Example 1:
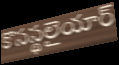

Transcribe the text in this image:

కొసస్థలైయార్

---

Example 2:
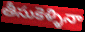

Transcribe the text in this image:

తీసుకెళ్ళినా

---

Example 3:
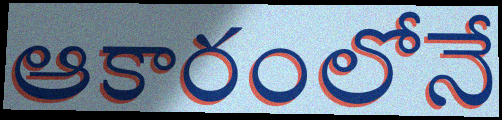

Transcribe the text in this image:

ఆకారంలోనే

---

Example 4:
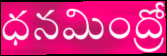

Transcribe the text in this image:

ధనమింద్రో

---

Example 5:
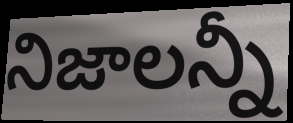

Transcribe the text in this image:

నిజాలన్నీ